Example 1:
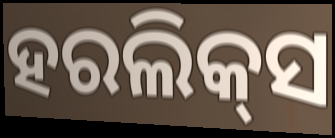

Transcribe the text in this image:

ହରଲିକ୍‌ସ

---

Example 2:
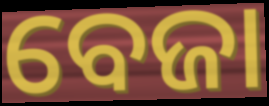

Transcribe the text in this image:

ବେଜା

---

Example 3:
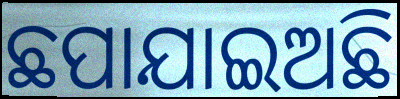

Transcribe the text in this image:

ଛପାଯାଇଅଛି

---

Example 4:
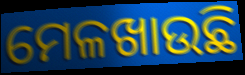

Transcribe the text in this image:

ମେଳଖାଉଛି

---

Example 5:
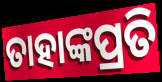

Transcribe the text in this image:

ତାହାଙ୍କପ୍ରତି